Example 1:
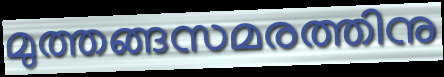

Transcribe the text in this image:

മുത്തങ്ങസമരത്തിനു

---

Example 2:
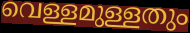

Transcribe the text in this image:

വെള്ളമുള്ളതും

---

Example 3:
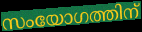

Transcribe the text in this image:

സംയോഗത്തിന്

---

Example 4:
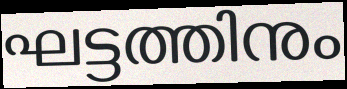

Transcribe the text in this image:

ഘട്ടത്തിനും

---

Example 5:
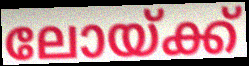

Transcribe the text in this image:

ലോയ്ക്ക്